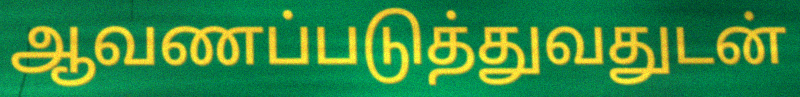
ஆவணப்படுத்துவதுடன்